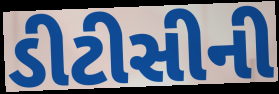
ડીટીસીની